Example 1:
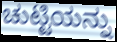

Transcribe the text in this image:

ಚುಟ್ಟಿಯನ್ನು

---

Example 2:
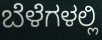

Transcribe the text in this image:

ಬೆಳೆಗಳಲ್ಲಿ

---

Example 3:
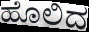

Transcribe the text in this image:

ಹೊಲಿದ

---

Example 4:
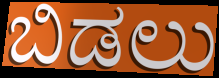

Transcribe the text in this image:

ಬಿಡಲು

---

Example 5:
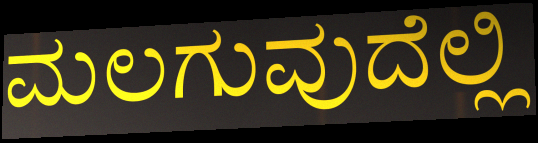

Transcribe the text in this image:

ಮಲಗುವುದೆಲ್ಲಿ